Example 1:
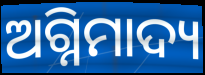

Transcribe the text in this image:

ଅଗ୍ନିମାଦ୍ୟ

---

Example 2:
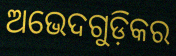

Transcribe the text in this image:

ଅଭେଦଗୁଡ଼ିକର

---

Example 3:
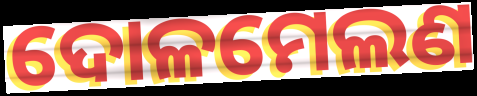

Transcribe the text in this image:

ଦୋଳମେଲଣ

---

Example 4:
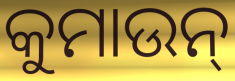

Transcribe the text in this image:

କୁମାଉନ୍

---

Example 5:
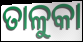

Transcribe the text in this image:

ତାଳୁକା